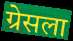
ग्रेसला